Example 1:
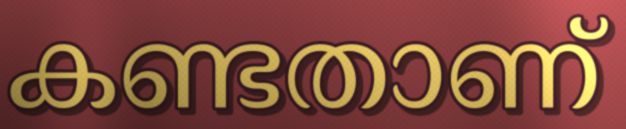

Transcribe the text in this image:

കണ്ടതാണ്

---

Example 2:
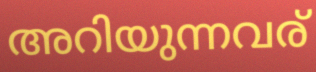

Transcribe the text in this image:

അറിയുന്നവര്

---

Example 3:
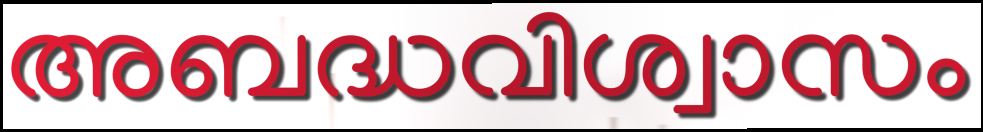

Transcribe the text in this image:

അബദ്ധവിശ്വാസം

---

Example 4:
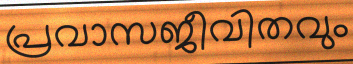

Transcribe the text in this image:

പ്രവാസജീവിതവും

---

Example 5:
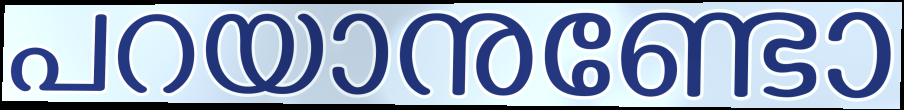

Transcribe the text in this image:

പറയാനുണ്ടോ